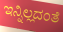
ಇನ್ನಿಲ್ಲದಂತೆ